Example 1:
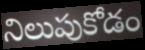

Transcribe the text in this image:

నిలుపుకోడం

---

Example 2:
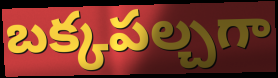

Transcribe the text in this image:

బక్కపల్చగా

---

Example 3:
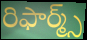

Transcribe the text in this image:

రిఫార్మ్స్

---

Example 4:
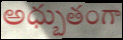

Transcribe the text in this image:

అధ్బుతంగా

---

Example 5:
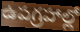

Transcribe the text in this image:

ఉపగ్రహాల్లో